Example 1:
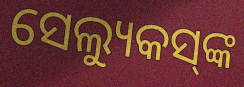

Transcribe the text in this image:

ସେଲ୍ୟୁକସ୍‌ଙ୍କ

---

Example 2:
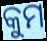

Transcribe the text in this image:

କୁମ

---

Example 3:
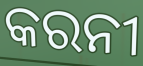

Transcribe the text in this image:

କରନୀ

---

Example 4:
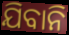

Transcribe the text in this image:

ଯିବାନି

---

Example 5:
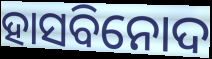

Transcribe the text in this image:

ହାସବିନୋଦ